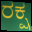
ರಕ್ಷ